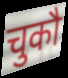
चुकौ